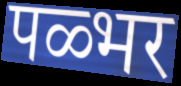
पळ्भर